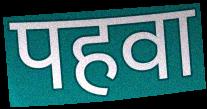
पहवा